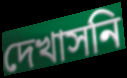
দেখাসনি